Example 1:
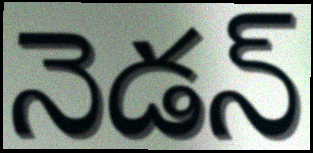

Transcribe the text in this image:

నెడన్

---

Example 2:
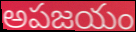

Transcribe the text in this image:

అపజయం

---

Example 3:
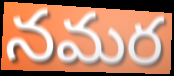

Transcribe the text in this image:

నమర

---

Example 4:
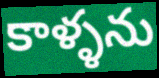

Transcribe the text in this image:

కాళ్ళను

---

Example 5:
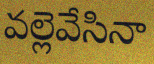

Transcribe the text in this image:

వల్లెవేసినా